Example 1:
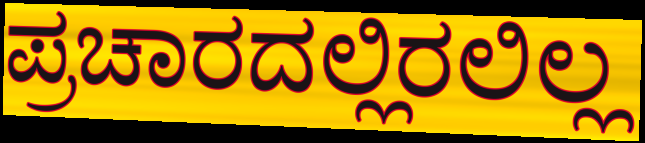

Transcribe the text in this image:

ಪ್ರಚಾರದಲ್ಲಿರಲಿಲ್ಲ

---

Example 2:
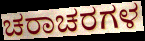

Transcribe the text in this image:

ಚರಾಚರಗಳ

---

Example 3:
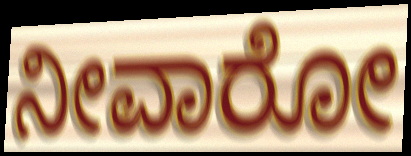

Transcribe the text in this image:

ನೀವಾರೋ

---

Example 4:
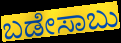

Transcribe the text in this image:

ಬಡೇಸಾಬು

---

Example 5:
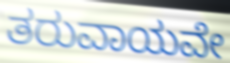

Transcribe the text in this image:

ತರುವಾಯವೇ